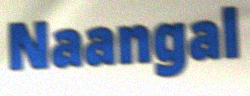
Naangal